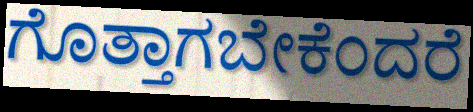
ಗೊತ್ತಾಗಬೇಕೆಂದರೆ